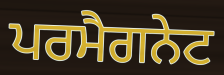
ਪਰਮੈਗਨੇਟ